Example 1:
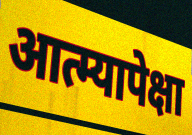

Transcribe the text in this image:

आत्म्यापेक्षा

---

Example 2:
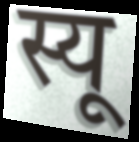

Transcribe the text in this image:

स्यू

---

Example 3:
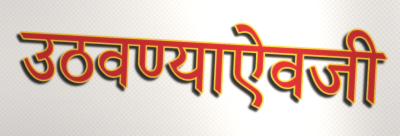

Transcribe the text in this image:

उठवण्याऐवजी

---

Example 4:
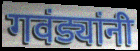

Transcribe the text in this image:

गवंड्यांनी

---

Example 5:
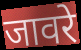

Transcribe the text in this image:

जावरे